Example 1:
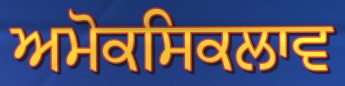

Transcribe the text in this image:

ਅਮੋਕਸਿਕਲਾਵ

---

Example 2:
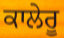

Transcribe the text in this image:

ਕਾਲੇਰੂ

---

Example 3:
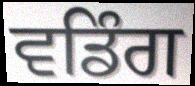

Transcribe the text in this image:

ਵਡਿੰਗ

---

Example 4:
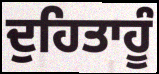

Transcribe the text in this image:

ਦੁਹਿਤਾਹੂੰ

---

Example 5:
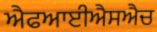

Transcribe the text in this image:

ਐਫਆਈਐਸਐਚ